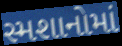
સ્મશાનોમાં